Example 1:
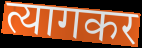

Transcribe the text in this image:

त्यागकर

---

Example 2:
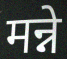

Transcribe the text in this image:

मन्ने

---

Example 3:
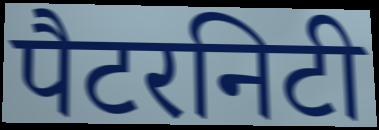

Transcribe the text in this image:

पैटरनिटी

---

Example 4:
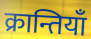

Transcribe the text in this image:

क्रान्तियाँ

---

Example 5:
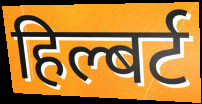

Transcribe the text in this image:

हिल्बर्ट